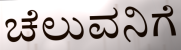
ಚೆಲುವನಿಗೆ